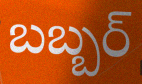
బబ్బర్